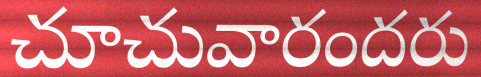
చూచువారందరు